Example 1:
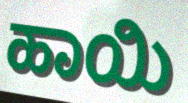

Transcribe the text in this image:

ಹಾಯಿ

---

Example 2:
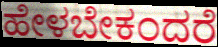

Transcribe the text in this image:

ಹೇಳಬೇಕಂದರೆ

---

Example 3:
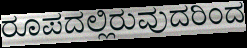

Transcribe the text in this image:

ರೂಪದಲ್ಲಿರುವುದರಿಂದ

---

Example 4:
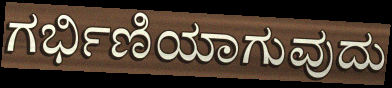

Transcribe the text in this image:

ಗರ್ಭಿಣಿಯಾಗುವುದು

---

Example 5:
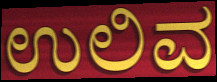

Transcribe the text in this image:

ಉಲಿವ